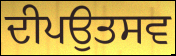
ਦੀਪਉਤਸਵ